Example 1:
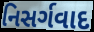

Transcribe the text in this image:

નિસર્ગવાદ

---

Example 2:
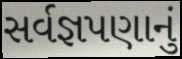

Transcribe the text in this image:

સર્વજ્ઞપણાનું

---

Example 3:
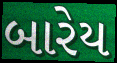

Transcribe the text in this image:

બારેય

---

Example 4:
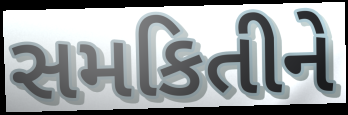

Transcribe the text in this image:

સમકિતીને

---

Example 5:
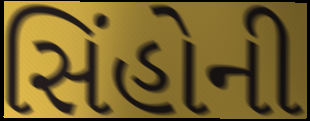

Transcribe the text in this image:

સિંહોની